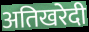
अतिखरेदी